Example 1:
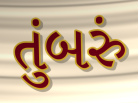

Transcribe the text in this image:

તુંબરું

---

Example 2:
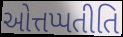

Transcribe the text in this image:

ઓત્તપ્પતીતિ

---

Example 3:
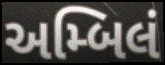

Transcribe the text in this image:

અમ્બિલં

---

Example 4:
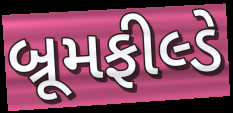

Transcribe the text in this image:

બ્રૂમફીલ્ડે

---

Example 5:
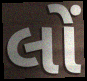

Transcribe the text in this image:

લોં